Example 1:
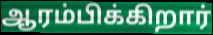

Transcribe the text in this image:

ஆரம்பிக்கிறார்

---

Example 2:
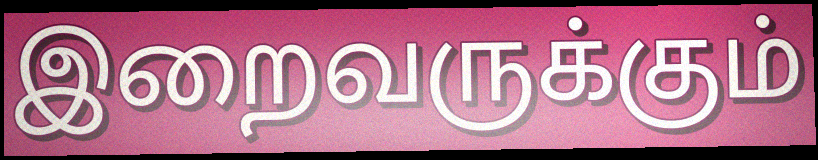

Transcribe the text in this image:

இறைவருக்கும்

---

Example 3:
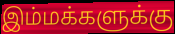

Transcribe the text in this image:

இம்மக்களுக்கு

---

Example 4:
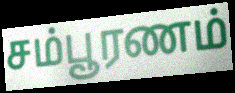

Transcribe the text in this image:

சம்பூரணம்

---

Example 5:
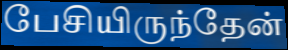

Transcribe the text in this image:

பேசியிருந்தேன்